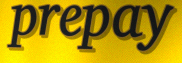
prepay